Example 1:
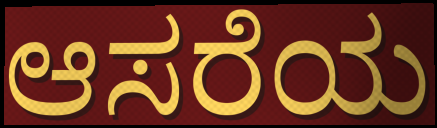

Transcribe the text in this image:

ಆಸರೆಯ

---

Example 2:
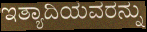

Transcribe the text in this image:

ಇತ್ಯಾದಿಯವರನ್ನು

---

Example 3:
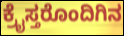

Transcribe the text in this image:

ಕ್ರೈಸ್ತರೊಂದಿಗಿನ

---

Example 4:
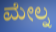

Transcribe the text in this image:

ಮೇಲ್ನ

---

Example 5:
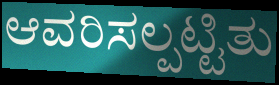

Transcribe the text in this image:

ಆವರಿಸಲ್ಪಟ್ಟಿತು